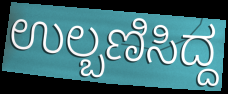
ಉಲ್ಬಣಿಸಿದ್ದ